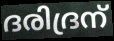
ദരിദ്രന്